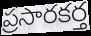
ప్రసారకర్త